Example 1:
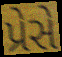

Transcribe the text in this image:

પ્રેસે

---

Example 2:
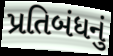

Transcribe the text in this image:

પ્રતિબંધનું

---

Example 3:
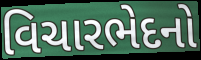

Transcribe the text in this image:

વિચારભેદનો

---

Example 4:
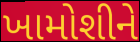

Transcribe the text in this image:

ખામોશીને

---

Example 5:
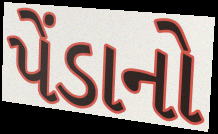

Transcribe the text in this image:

પેંડાનો